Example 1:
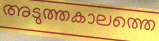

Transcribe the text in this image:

അടുത്തകാലത്തെ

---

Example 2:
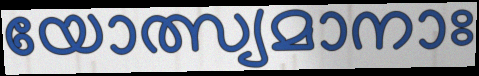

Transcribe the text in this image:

യോത്സ്യമാനാഃ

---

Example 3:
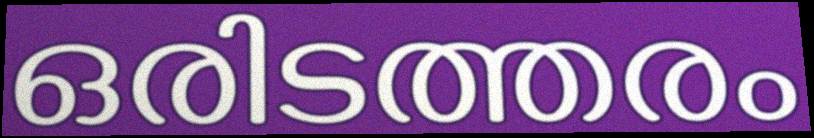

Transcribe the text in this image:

ഒരിടത്തരം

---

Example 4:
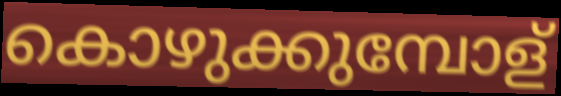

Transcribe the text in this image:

കൊഴുക്കുമ്പോള്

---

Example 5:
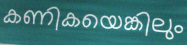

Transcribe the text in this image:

കണികയെങ്കിലും